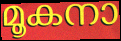
മൂകനാ